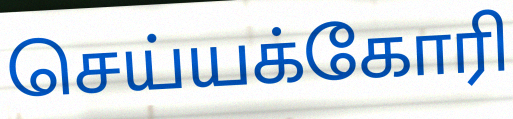
செய்யக்கோரி